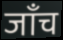
जाँच